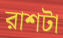
রাশটা